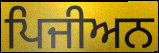
ਪਿਜੀਅਨ